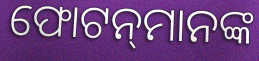
ଫୋଟନ୍‍ମାନଙ୍କ